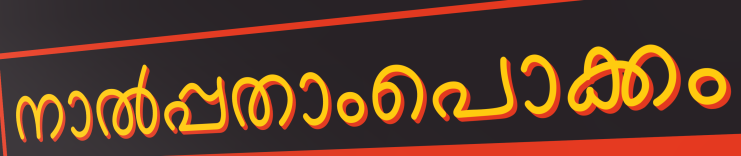
നാൽപ്പതാംപൊക്കം